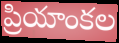
ప్రియాంకల